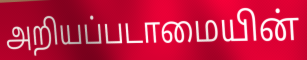
அறியப்படாமையின்